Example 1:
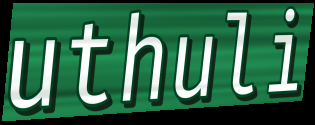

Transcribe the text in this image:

uthuli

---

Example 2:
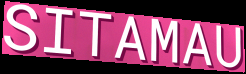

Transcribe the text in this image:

SITAMAU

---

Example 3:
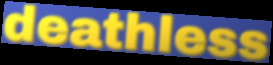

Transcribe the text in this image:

deathless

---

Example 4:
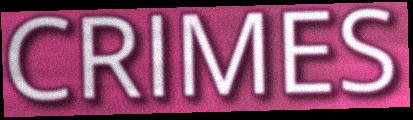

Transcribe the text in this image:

CRIMES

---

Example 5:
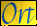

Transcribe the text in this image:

Ort